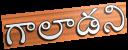
గాలాడని